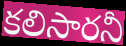
కలిసారనీ